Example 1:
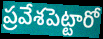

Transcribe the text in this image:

ప్రవేశపెట్టారో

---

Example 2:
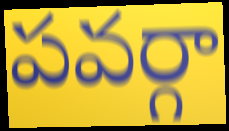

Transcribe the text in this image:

పవర్గా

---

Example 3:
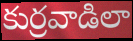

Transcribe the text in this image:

కుర్రవాడిలా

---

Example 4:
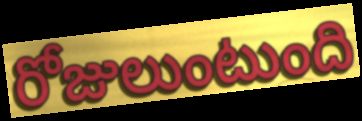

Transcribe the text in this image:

రోజులుంటుంది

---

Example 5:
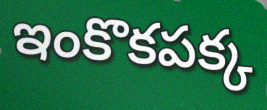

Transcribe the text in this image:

ఇంకొకపక్క